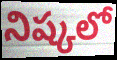
నిష్కలో